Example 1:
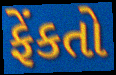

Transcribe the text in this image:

ફેંકતો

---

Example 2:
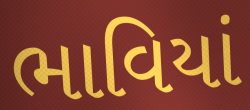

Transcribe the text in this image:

ભાવિયાં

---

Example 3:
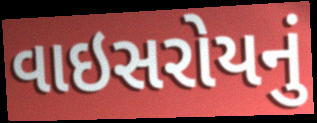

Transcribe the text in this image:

વાઇસરોયનું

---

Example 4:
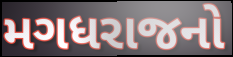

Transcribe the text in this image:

મગધરાજનો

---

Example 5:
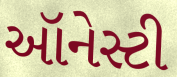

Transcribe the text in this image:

ઑનેસ્ટી